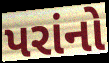
પરાંનો